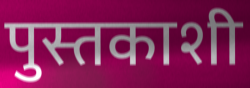
पुस्तकाशी